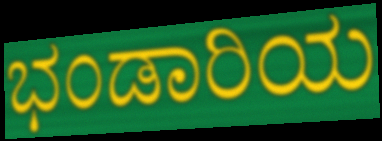
ಭಂಡಾರಿಯ